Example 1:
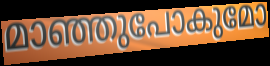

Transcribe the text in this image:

മാഞ്ഞുപോകുമോ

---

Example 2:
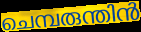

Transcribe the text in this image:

ചെമ്പരുന്തിൻ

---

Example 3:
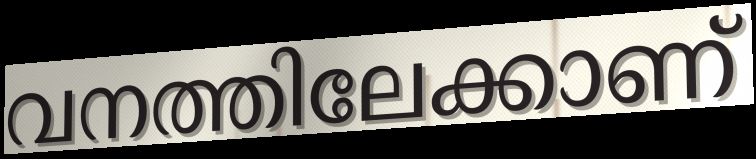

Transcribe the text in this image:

വനത്തിലേക്കാണ്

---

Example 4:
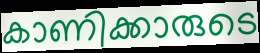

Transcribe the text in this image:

കാണിക്കാരുടെ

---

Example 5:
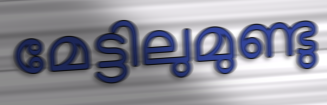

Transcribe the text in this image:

മേട്ടിലുമുണ്ടു